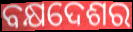
ବକ୍ଷଦେଶର